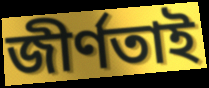
জীর্ণতাই